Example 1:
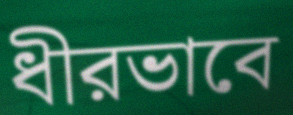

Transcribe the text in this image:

ধীরভাবে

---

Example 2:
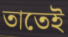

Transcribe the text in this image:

তাতেই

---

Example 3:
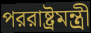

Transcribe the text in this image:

পররাষ্ট্রমন্ত্রী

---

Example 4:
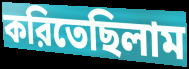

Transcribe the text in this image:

করিতেছিলাম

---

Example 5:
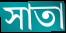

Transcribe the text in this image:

সাতা